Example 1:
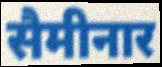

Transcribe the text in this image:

सैमीनार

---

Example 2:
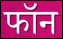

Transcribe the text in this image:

फॉन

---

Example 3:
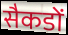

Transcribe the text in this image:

सैकडों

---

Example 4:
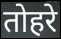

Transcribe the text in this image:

तोहरे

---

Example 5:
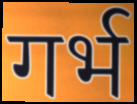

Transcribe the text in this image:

गर्भ